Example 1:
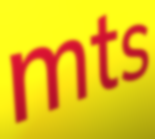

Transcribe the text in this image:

mts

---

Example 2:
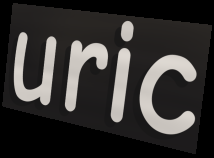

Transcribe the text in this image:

uric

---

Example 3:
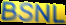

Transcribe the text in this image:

BSNL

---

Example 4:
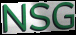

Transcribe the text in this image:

NSG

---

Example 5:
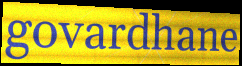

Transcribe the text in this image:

govardhane